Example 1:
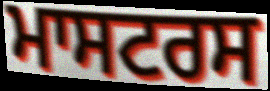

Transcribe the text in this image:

ਮਾਸਟਰਸ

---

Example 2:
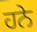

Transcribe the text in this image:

ਹਨੇ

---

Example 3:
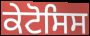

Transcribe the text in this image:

ਕੇਟੋਸਿਸ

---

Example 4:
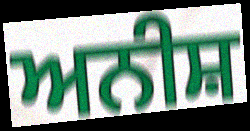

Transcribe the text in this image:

ਅਨੀਸ਼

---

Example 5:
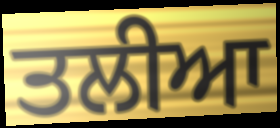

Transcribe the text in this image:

ਤਲੀਆ